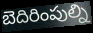
బెదిరింపుల్ని